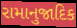
રામાનુજાદિક